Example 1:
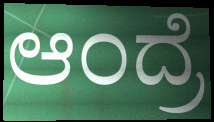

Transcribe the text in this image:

ಆಂದ್ರೆ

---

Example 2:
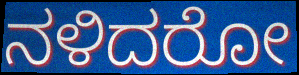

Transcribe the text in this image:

ನಳಿದರೋ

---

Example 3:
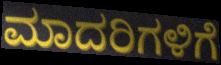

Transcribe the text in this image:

ಮಾದರಿಗಳಿಗೆ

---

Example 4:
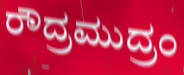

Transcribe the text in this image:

ರೌದ್ರಮುದ್ರಂ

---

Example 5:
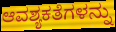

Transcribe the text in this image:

ಆವಶ್ಯಕತೆಗಳನ್ನು